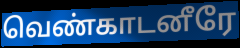
வெண்காடனீரே